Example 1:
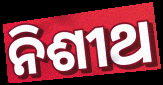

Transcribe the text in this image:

ନିଶୀଥ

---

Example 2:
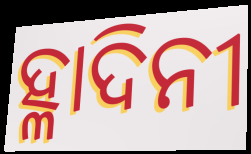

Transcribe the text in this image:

ହ୍ଳାଦିନୀ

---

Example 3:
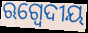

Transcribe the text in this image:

ଋଗ୍ବେଦୀୟ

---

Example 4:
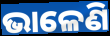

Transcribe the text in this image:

ଭାଳେଣି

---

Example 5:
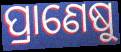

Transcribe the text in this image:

ପ୍ରାଣେଷୁ